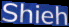
Shieh